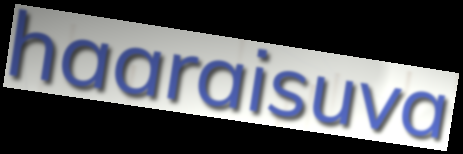
haaraisuva